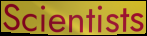
Scientists